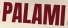
PALAMI